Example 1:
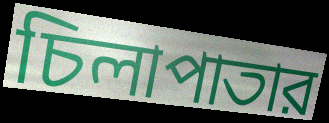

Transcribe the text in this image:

চিলাপাতার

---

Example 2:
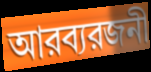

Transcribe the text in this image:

আরব্যরজনী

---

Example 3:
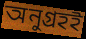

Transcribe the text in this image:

অনুগ্রহই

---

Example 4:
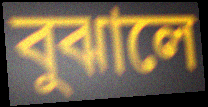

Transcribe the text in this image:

বুঝালে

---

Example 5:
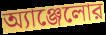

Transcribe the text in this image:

অ্যাঞ্জেলোর